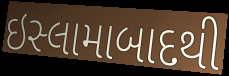
ઇસ્લામાબાદથી